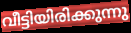
വീട്ടിയിരിക്കുന്നു